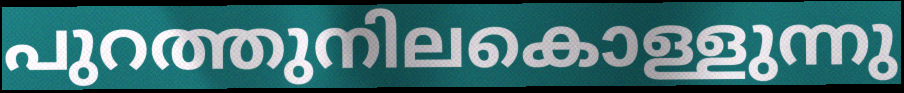
പുറത്തുനിലകൊള്ളുന്നു